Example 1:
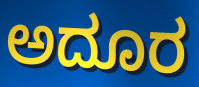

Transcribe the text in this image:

ಅದೂರ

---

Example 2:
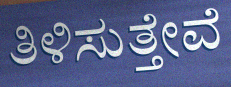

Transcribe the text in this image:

ತಿಳಿಸುತ್ತೇವೆ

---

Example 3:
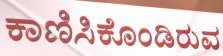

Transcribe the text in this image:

ಕಾಣಿಸಿಕೊಂಡಿರುವ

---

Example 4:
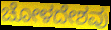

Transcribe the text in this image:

ಚೋಳದೇಶವು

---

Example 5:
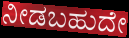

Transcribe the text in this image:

ನೀಡಬಹುದೇ